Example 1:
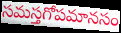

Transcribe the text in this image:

సమస్తగోపమానసం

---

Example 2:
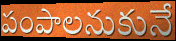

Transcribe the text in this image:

పంపాలనుకునే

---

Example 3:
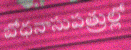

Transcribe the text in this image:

బోధనాసుపత్రుల్లో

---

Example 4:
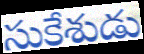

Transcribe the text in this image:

సుకేశుడు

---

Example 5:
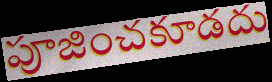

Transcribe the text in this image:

పూజించకూడదు